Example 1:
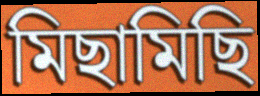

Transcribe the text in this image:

মিছামিছি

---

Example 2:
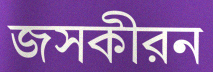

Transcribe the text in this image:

জসকীরন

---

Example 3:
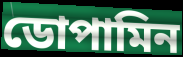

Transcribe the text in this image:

ডোপামিন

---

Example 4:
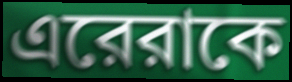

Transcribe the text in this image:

এরেরাকে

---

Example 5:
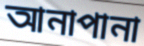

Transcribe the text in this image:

আনাপানা